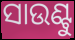
ସାଉଣ୍ଟୁ